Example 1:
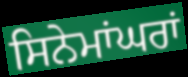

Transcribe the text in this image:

ਸਿਨੇਮਾਂਘਰਾਂ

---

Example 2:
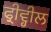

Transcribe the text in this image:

ਫ੍ਰੀਵ੍ਹੀਲ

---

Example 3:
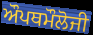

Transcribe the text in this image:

ਔਪਥਮੌਲੋਜੀ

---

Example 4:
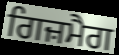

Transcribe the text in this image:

ਗਿਜ਼ਮੈਗ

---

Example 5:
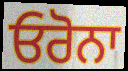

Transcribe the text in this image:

ਓਰੋਨਾ